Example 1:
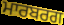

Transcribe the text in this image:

ਮਾਰਬਰਗ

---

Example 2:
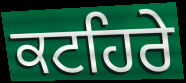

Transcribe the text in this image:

ਕਟਹਿਰੇ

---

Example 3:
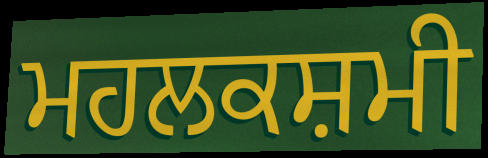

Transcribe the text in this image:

ਮਹਲਕਸ਼ਮੀ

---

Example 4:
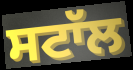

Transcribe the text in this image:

ਸਟਾੱਲ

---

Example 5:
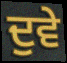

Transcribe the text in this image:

ਦੁਵੇ